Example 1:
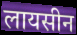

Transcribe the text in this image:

लायसीन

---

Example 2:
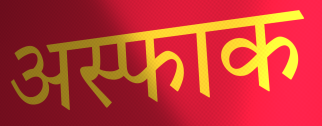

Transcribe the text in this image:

अस्फाक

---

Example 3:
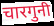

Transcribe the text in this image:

चारगुनी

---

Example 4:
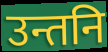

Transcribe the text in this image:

उन्तनि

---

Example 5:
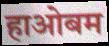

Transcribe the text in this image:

हाओबम